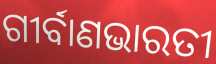
ଗୀର୍ବାଣଭାରତୀ